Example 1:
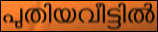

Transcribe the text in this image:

പുതിയവീട്ടിൽ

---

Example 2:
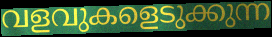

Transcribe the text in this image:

വളവുകളെടുക്കുന്ന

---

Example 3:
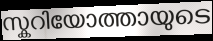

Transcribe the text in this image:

സ്കറിയോത്തായുടെ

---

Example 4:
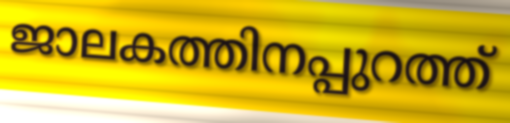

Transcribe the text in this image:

ജാലകത്തിനപ്പുറത്ത്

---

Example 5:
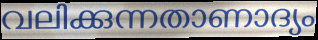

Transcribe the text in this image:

വലിക്കുന്നതാണാദ്യം